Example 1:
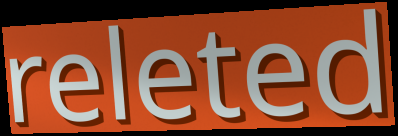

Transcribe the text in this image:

releted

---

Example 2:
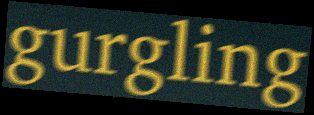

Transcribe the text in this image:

gurgling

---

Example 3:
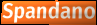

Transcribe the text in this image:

Spandano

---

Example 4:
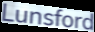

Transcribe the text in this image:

Lunsford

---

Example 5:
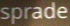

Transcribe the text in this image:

sprade